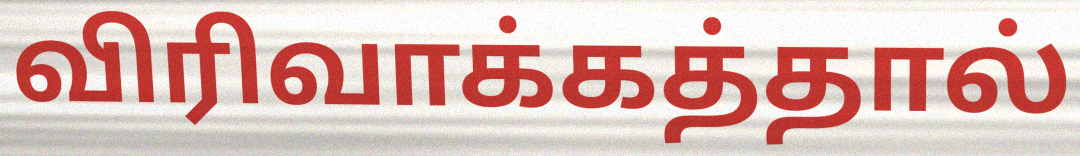
விரிவாக்கத்தால்